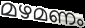
മഴമണം